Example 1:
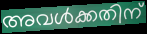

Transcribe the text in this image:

അവൾക്കതിന്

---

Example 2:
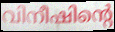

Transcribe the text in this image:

വിനീഷിന്റെ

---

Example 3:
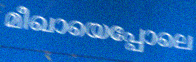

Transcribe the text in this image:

മീഖായെപ്പോലെ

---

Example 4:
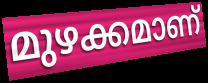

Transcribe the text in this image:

മുഴക്കമാണ്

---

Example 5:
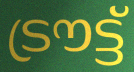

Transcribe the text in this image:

ട്രൗട്ട്